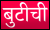
बुटीची